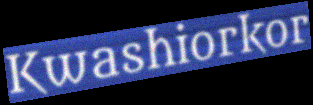
Kwashiorkor